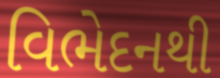
વિભેદનથી